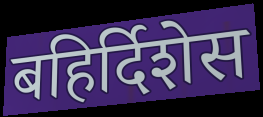
बहिर्दिशेस